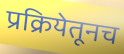
प्रक्रियेतूनच